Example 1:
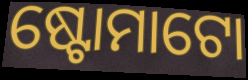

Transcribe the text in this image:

ଷ୍ଟୋମାଟୋ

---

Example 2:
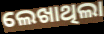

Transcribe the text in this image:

ଲେଖାଥିଲା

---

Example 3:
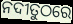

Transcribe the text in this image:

ନଦୀତୁଠରେ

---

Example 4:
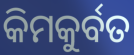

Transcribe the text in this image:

କିମକୁର୍ବତ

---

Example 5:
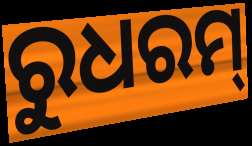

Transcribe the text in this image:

ରୁଧରମ୍